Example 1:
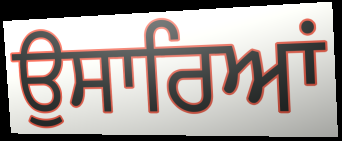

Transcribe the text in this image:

ਉਸਾਰਿਆਂ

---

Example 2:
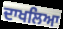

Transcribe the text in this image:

ਦਾਖਲਿਆ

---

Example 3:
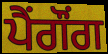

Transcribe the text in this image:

ਪੈਂਗੌਂਗ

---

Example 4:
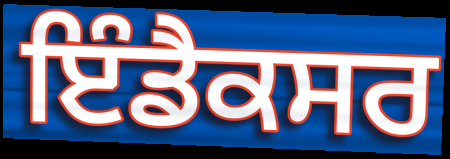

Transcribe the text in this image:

ਇੰਡੈਕਸਰ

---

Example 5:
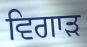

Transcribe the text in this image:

ਵਿਗਾਡ਼